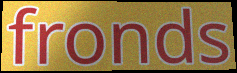
fronds